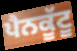
ਪੈਨਕੂੱਟੂ